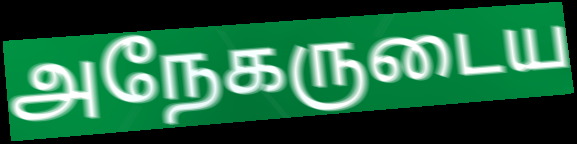
அநேகருடைய